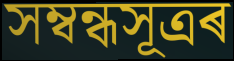
সম্বন্ধসূত্ৰৰ